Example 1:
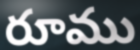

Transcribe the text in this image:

రూము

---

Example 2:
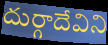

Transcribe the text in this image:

దుర్గాదేవిని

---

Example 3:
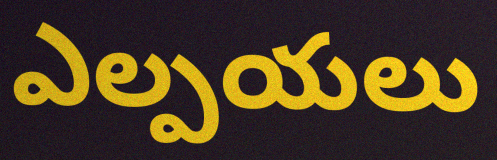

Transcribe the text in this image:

ఎల్పయలు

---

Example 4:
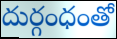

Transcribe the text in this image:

దుర్గంధంతో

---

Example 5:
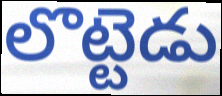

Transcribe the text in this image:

లొట్టెడు